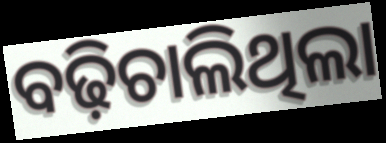
ବଢ଼ିଚାଲିଥିଲା